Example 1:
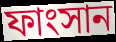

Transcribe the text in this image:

ফাংসান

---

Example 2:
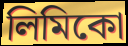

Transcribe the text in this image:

লিমিকো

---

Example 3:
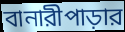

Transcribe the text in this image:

বানারীপাড়ার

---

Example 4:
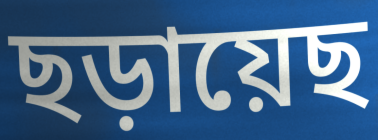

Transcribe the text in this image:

ছড়ায়েছ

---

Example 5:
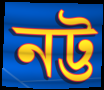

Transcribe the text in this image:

নট্ট